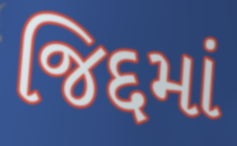
જિદ્દમાં